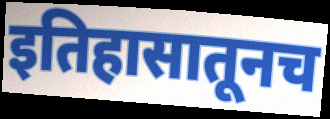
इतिहासातूनच